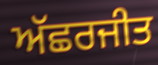
ਅੱਛਰਜੀਤ